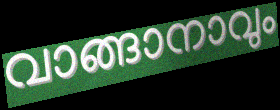
വാങ്ങാനാവും